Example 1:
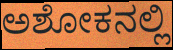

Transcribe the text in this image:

ಅಶೋಕನಲ್ಲಿ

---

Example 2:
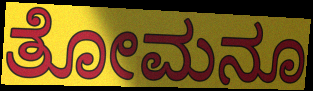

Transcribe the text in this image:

ತೋಮನೂ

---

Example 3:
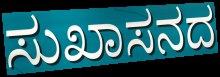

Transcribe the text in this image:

ಸುಖಾಸನದ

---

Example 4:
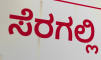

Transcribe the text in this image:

ಸೆರಗಲ್ಲಿ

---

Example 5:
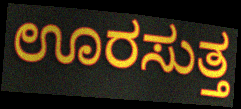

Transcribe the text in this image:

ಊರಸುತ್ತ